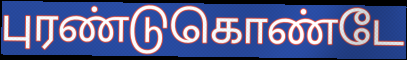
புரண்டுகொண்டே